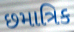
છમાત્રિક